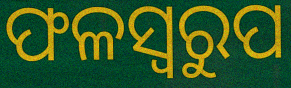
ଫଳସ୍ୱରୁପ